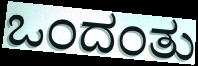
ಒಂದಂತು